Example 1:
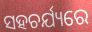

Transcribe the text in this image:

ସହଚର୍ଯ୍ୟରେ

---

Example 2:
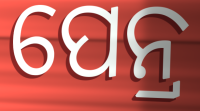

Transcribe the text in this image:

ପେନ୍ର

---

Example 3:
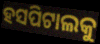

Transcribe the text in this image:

ହସପିଟାଲକୁ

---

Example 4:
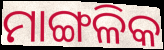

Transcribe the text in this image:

ମାଙ୍ଗଳିକ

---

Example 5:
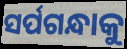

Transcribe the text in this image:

ସର୍ପଗନ୍ଧାକୁ